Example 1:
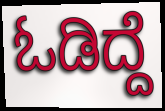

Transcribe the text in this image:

ಓಡಿದ್ದೆ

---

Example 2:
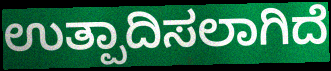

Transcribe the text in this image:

ಉತ್ಪಾದಿಸಲಾಗಿದೆ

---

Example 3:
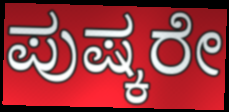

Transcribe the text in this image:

ಪುಷ್ಕರೇ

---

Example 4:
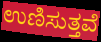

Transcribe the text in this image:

ಉಣಿಸುತ್ತವೆ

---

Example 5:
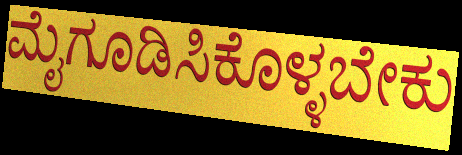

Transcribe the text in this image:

ಮೈಗೂಡಿಸಿಕೊಳ್ಳಬೇಕು